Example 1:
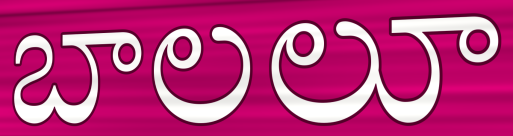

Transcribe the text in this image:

బాలలూ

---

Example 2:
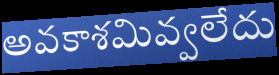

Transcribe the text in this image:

అవకాశమివ్వలేదు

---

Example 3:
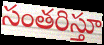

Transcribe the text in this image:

సంతరిస్తూ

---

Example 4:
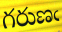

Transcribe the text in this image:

గరుణఁ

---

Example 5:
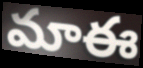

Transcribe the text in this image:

మాఈ